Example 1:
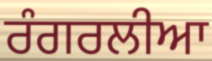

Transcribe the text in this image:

ਰੰਗਰਲੀਆ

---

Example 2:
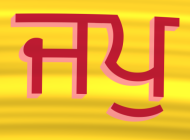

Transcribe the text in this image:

ਜਪੁ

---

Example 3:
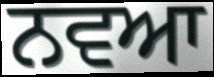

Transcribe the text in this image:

ਨਵਆ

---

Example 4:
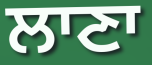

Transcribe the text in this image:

ਲਾਣਾ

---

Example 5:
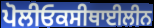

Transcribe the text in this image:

ਪੋਲੀਓਕਸੀਥਾਈਲੀਨ